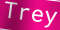
Trey